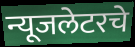
न्यूजलेटरचे